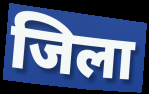
जिला